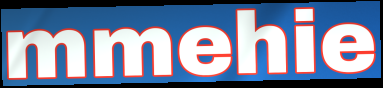
mmehie